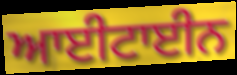
ਆਈਟਾਈਨ